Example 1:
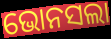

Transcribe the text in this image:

ଭୋନସଲା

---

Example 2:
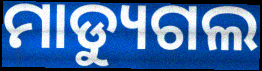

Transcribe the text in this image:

ମାଡ୍ୟୁଗଲ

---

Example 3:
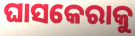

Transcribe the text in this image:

ଘାସକେରାକୁ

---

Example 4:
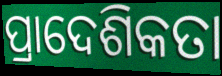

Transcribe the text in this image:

ପ୍ରାଦେଶିକତା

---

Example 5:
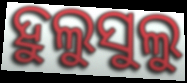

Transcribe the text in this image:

ହୁଲୁସୁଲୁ